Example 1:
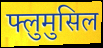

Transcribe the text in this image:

फ्लुमुसिल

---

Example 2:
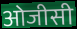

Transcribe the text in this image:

ओजीसी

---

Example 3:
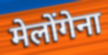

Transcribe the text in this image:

मेलोंगेना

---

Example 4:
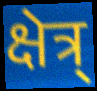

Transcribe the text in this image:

क्षेत्र्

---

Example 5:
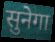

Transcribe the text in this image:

सुनेगा